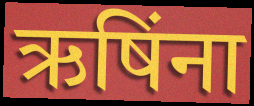
ऋषिंना